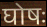
घोषः